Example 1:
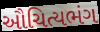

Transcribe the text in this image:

ઔચિત્યભંગ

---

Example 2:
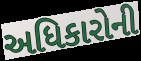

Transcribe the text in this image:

અધિકારોની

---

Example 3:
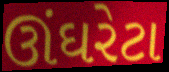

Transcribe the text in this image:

ઊંઘરેટા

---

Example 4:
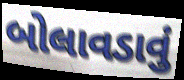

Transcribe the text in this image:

બોલાવડાવું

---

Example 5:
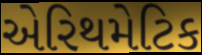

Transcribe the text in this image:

એરિથમેટિક